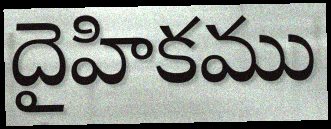
దైహికము